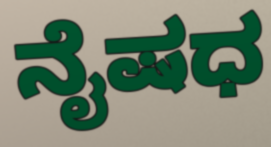
ನೈಷಧ